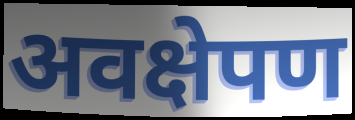
अवक्षेपण